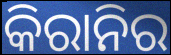
କିରାନିର